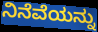
ನಿನೆವೆಯನ್ನು